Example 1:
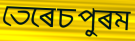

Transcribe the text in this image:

তেৰেচপুৰম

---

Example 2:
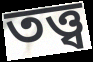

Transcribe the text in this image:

তত্ত্ব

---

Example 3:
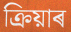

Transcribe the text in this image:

ক্ৰিয়াৰ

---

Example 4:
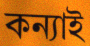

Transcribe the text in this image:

কন্যাই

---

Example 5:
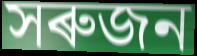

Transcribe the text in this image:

সৰুজন